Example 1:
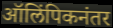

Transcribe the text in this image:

ऑलिंपिकनंतर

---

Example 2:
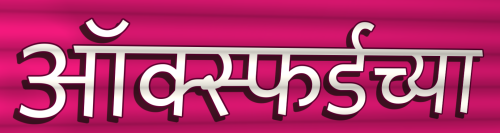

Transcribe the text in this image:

ऑक्स्फर्डच्या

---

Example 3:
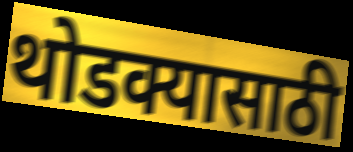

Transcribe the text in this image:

थोडक्यासाठी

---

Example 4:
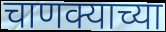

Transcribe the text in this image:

चाणक्याच्या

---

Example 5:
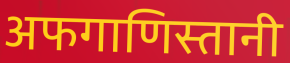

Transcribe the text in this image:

अफगाणिस्तानी